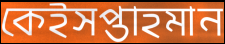
কেইসপ্তাহমান